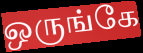
ஒருங்கே